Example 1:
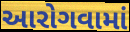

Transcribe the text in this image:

આરોગવામાં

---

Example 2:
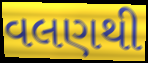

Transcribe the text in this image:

વલણથી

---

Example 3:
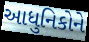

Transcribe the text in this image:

આધુનિકોને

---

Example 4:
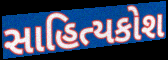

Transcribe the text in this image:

સાહિત્યકોશ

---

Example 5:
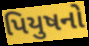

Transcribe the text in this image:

પિયુષનો